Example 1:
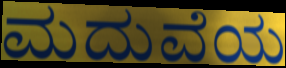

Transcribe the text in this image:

ಮದುವೆಯ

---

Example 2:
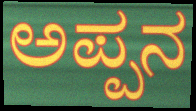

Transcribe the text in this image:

ಅಪ್ಪನ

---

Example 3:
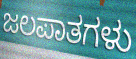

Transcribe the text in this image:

ಜಲಪಾತಗಳು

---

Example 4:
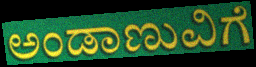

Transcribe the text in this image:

ಅಂಡಾಣುವಿಗೆ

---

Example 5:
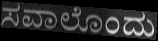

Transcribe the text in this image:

ಸವಾಲೊಂದು